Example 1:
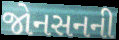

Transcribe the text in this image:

જોનસનની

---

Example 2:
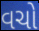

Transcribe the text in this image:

વચો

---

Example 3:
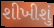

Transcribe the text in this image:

શીખીશું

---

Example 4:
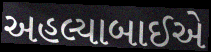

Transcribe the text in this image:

અહલ્યાબાઈએ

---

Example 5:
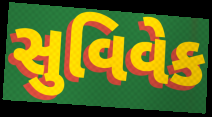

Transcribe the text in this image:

સુવિવેક